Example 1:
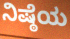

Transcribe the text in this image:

ನಿಷ್ಠೆಯ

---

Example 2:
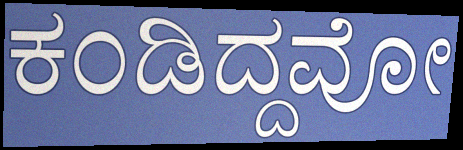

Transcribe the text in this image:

ಕಂಡಿದ್ದವೋ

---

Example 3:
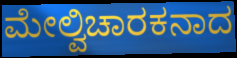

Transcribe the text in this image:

ಮೇಲ್ವಿಚಾರಕನಾದ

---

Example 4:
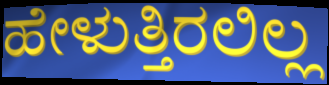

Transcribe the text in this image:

ಹೇಳುತ್ತಿರಲಿಲ್ಲ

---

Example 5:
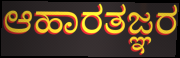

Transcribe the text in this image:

ಆಹಾರತಜ್ಞರ